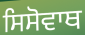
ਸਿਸੋਵਾਥ